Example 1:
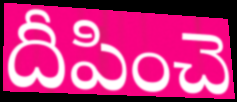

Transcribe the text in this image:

దీపించె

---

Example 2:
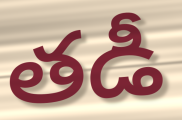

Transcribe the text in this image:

తడీ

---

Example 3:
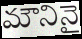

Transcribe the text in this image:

మౌనినై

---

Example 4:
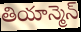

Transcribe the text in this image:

తియాన్మెన్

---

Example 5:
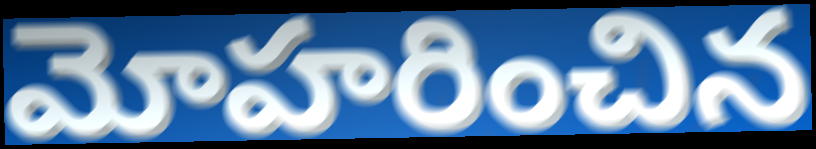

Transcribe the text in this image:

మోహరించిన